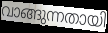
വാങ്ങുന്നതായി